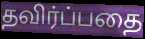
தவிர்ப்பதை